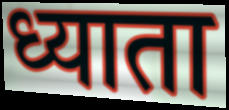
ध्याता